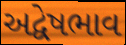
અદ્વેષભાવ